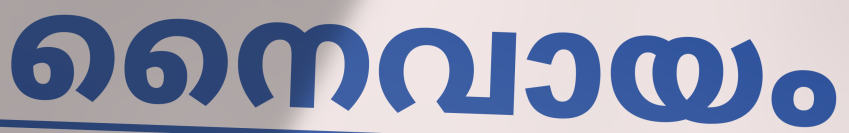
നൈവായം